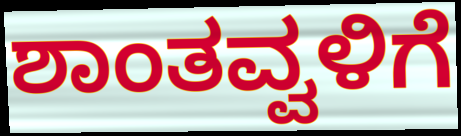
ಶಾಂತವ್ವಳಿಗೆ